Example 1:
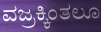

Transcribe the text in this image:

ವಜ್ರಕ್ಕಿಂತಲೂ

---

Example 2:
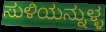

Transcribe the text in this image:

ಸುಳಿಯನ್ನುಳ್ಳ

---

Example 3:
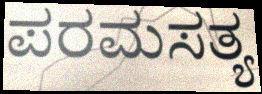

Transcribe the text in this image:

ಪರಮಸತ್ಯ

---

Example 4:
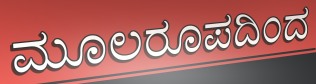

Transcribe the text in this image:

ಮೂಲರೂಪದಿಂದ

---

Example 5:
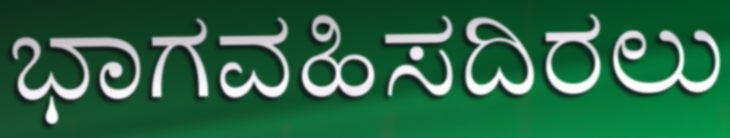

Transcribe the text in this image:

ಭಾಗವಹಿಸದಿರಲು